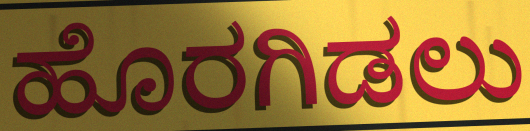
ಹೊರಗಿಡಲು